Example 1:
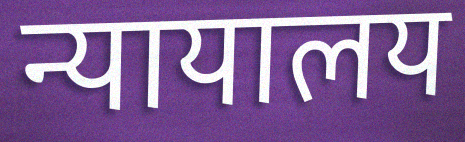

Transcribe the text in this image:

न्‍यायालय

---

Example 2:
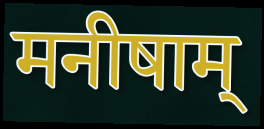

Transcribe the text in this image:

मनीषाम्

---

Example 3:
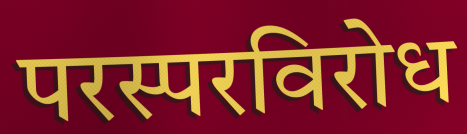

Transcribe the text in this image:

परस्परविरोध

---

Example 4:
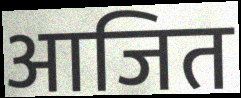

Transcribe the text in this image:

आजित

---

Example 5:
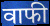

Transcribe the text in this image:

वाफी